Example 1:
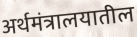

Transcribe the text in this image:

अर्थमंत्रालयातील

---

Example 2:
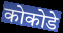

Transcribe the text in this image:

कोकोडे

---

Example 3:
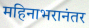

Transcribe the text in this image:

महिनाभरानंतर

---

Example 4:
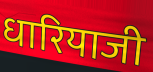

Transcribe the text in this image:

धारियाजी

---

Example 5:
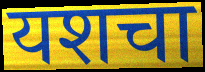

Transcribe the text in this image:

यशचा